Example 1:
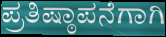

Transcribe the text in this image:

ಪ್ರತಿಷ್ಠಾಪನೆಗಾಗಿ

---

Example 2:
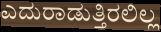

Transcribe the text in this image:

ಎದುರಾಡುತ್ತಿರಲಿಲ್ಲ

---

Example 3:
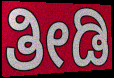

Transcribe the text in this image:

ತೀಡಿ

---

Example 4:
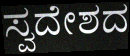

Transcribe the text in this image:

ಸ್ವದೇಶದ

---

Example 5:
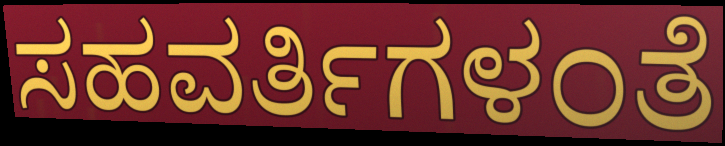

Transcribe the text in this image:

ಸಹವರ್ತಿಗಳಂತೆ